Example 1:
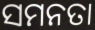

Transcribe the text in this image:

ସମନତା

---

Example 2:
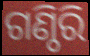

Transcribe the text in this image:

ଗଣ୍ଠିରି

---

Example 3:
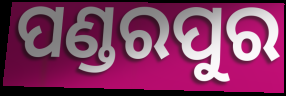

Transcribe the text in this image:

ପଣ୍ଡରପୁର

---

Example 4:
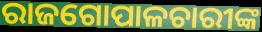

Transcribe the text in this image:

ରାଜଗୋପାଳଚାରୀଙ୍କ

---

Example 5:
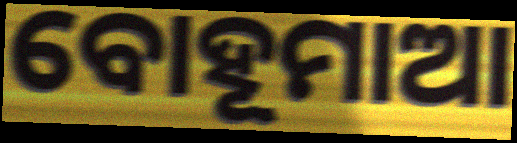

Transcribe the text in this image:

ବୋହୂମାଆ